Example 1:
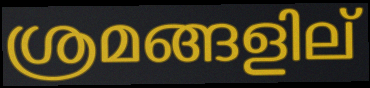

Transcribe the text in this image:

ശ്രമങ്ങളില്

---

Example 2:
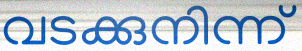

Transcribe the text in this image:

വടക്കുനിന്ന്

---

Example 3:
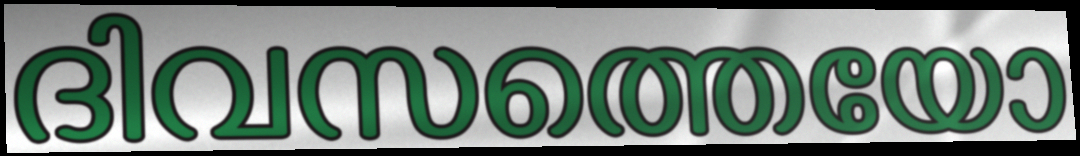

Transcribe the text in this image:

ദിവസത്തെയോ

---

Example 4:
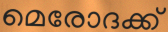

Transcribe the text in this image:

മെരോദക്ക്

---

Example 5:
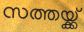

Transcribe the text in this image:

സത്തയ്ക്ക്